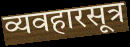
व्यवहारसूत्र